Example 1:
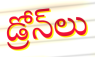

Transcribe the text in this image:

డ్రోన్‌లు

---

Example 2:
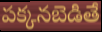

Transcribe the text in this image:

పక్కనబెడితే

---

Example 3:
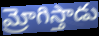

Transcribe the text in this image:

మ్రోగిస్తాడు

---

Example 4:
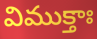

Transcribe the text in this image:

విముక్తాః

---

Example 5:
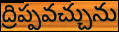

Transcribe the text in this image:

ద్రిప్పవచ్చును